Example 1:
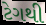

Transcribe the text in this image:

ટેગથી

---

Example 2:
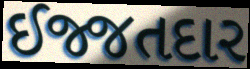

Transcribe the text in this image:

ઈજ્જતદાર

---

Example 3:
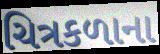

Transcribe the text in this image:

ચિત્રકળાના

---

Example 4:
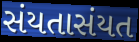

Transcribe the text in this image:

સંયતાસંયત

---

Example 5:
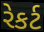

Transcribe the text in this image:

રેકર્ટ